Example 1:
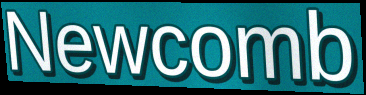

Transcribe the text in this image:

Newcomb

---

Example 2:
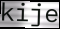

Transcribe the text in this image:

kije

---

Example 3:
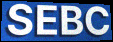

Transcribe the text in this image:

SEBC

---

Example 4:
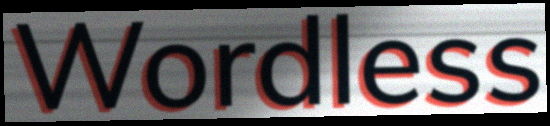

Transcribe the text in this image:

Wordless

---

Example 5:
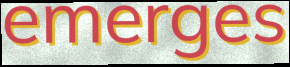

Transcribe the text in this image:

emerges